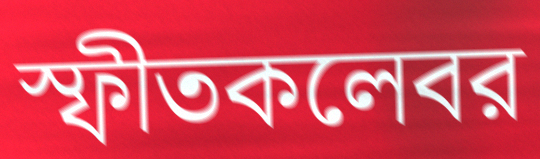
স্ফীতকলেবর